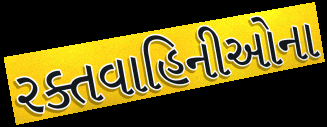
રક્તવાહિનીઓના